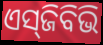
ଏସ୍‌ଜିବିଭି